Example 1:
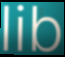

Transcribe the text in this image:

lib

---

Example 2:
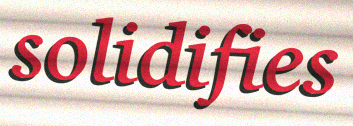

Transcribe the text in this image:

solidifies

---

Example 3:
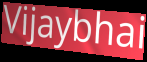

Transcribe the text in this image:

Vijaybhai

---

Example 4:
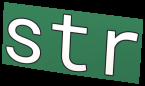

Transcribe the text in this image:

str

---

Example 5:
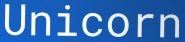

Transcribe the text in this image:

Unicorn